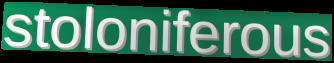
stoloniferous